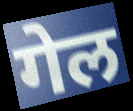
गेल